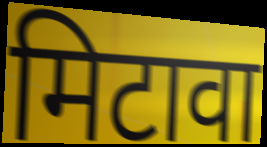
मिटावा